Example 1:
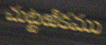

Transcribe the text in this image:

చుట్టఱికము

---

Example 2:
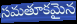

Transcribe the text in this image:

సమతూకమైన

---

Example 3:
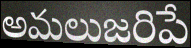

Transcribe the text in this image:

అమలుజరిపే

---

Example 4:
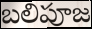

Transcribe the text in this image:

బలిపూజ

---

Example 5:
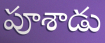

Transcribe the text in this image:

పూశాడు